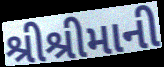
શ્રીશ્રીમાની